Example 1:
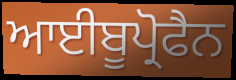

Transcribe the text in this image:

ਆਈਬੂਪ੍ਰੋਫੈਨ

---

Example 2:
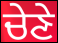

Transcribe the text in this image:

ਚੇਣੇ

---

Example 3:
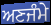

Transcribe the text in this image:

ਅਣਜੰਮੇ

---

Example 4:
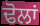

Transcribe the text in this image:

ਢੋਲਾਂ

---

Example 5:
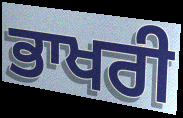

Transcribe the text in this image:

ਭਾਖਰੀ